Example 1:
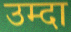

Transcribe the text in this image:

उम्‍दा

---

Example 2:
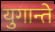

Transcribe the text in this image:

युगान्ते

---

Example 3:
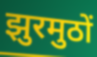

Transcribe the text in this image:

झुरमुठों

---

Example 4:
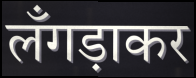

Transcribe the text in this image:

लँगड़ाकर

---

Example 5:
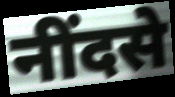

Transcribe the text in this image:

नींदसे